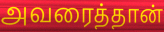
அவரைத்தான்